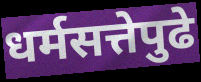
धर्मसत्तेपुढे